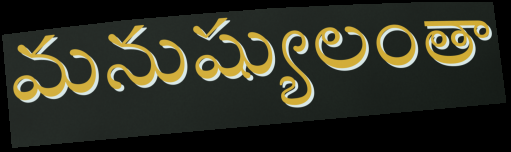
మనుష్యులంతా